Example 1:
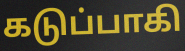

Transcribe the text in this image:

கடுப்பாகி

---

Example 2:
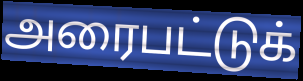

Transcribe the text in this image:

அரைபட்டுக்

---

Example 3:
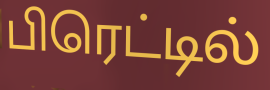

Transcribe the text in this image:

பிரெட்டில்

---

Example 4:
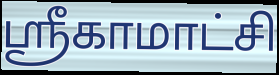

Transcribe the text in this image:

ஸ்ரீகாமாட்சி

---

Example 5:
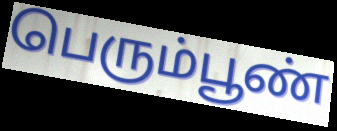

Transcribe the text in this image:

பெரும்பூண்